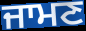
ਜਾਮਣ